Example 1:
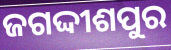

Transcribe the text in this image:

ଜଗଦ୍ଦୀଶପୁର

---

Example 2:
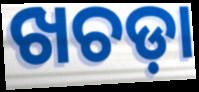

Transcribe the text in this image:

ଖଚଡ଼ା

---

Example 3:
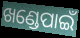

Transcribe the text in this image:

ଖଣ୍ଡେପାଇଁ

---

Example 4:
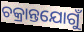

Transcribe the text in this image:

ଚକ୍ରାନ୍ତଯୋଗୁଁ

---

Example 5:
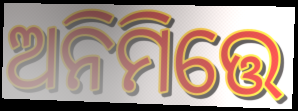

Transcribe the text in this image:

ଅନିମିତ୍ତେ